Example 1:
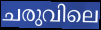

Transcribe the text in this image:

ചരുവിലെ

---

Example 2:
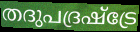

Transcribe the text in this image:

തദുപദ്രഷ്ട്രേ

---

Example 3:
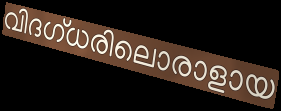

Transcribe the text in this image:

വിദഗ്ധരിലൊരാളായ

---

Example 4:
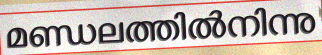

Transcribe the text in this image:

മണ്ഡലത്തിൽനിന്നു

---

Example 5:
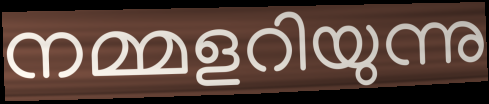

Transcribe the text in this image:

നമ്മളറിയുന്നു